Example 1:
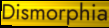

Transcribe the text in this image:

Dismorphia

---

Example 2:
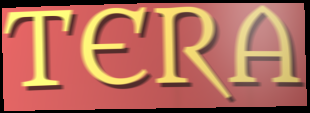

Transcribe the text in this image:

TERA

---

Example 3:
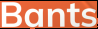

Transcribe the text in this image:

Bants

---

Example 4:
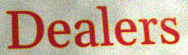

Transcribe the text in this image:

Dealers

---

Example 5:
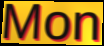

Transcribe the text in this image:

Mon